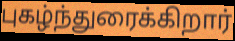
புகழ்ந்துரைக்கிறார்